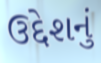
ઉદ્દેશનું